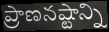
ప్రాణనష్టాన్ని